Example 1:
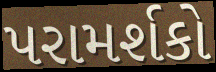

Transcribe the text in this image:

પરામર્શકો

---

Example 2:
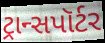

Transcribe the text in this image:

ટ્રાન્સપૉર્ટર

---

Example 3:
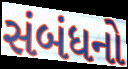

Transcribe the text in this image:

સંબંધનો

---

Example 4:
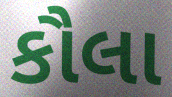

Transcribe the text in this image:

કૌલા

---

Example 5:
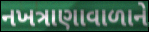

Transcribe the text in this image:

નખત્રાણાવાળાને